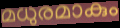
മധുരമാകും